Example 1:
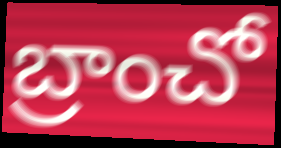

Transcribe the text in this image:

బ్రాంచో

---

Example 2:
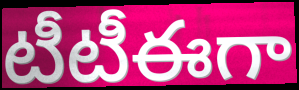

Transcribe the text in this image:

టీటీఈగా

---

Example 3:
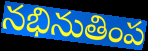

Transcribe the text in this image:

నభినుతింప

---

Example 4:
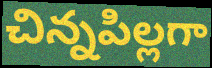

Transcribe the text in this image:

చిన్నపిల్లగా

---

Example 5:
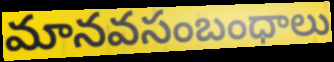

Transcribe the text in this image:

మానవసంబంధాలు